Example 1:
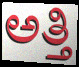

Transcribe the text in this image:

ಅತ್ತಿ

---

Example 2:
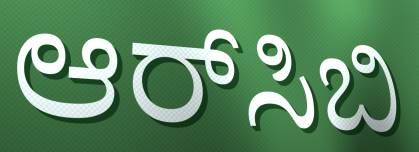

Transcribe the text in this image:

ಆರ್‌ಸಿಬಿ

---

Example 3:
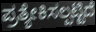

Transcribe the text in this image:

ಪ್ರತ್ಯೇಕಿಸಲ್ಪಟ್ಟಿದೆ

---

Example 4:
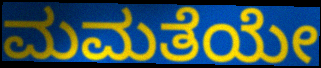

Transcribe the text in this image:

ಮಮತೆಯೇ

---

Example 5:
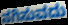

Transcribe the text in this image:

ನಗಿಸುವದು